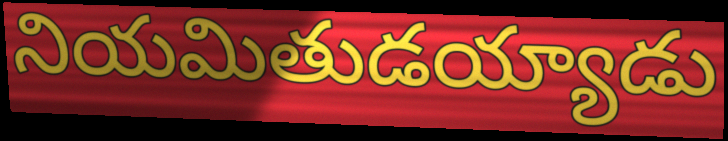
నియమితుడయ్యాడు